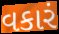
વકારં